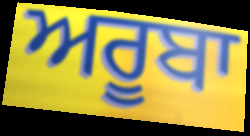
ਅਰੂਬਾ